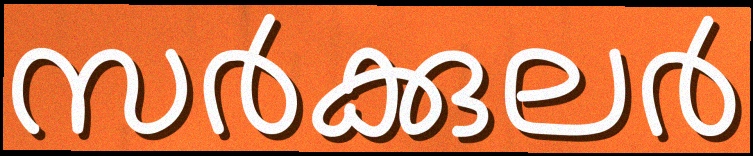
സർക്കുലർ